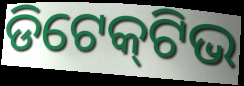
ଡିଟେକ୍‍ଟିଭ